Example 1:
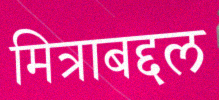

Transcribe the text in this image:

मित्राबद्दल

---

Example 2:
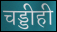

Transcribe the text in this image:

चड्डीही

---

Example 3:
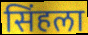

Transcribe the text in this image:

सिंहला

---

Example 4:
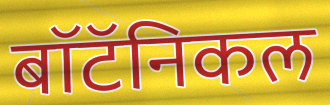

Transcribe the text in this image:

बॉटॅनिकल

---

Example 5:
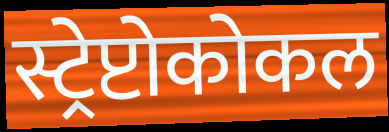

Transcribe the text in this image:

स्ट्रेप्टोकोकल